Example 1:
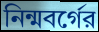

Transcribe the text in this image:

নিন্মবর্গের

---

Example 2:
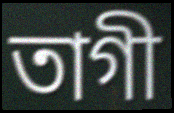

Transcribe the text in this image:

তাগী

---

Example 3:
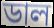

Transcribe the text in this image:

ডাল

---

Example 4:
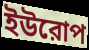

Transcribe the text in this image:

ইউরোপ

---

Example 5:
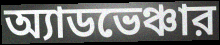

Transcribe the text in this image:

অ্যাডভেঞ্চার